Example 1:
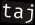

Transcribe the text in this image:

taj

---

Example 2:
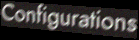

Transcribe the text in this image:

Configurations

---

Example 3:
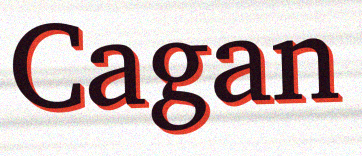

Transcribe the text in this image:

Cagan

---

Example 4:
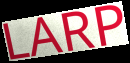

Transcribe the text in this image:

LARP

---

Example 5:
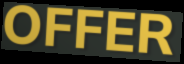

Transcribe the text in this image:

OFFER